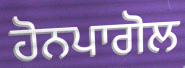
ਹੋਨਪਾਗੋਲ